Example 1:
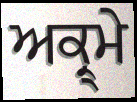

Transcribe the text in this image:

ਅਕ੍ਰ੍ਮੇ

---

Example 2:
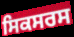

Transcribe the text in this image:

ਸਿਕਸਰਸ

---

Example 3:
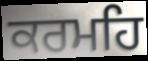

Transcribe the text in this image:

ਕਰਮਹਿ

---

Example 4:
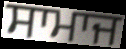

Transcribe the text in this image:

ਸਾਮਾਜ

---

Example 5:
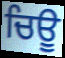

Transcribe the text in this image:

ਚਿਊ